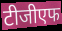
टीजीएफ